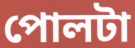
পোলটা